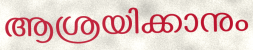
ആശ്രയിക്കാനും